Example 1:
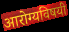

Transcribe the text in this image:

आरोग्यविषयी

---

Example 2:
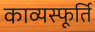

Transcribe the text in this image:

काव्यस्फूर्ति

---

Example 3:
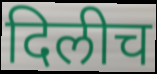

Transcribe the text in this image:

दिलीच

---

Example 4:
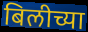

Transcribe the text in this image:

बिलीच्या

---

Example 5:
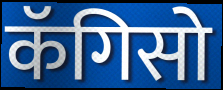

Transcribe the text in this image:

कॅगिसो